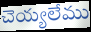
చెయ్యలేము